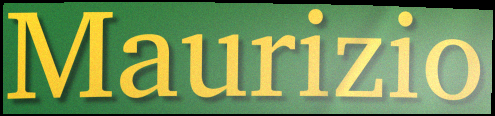
Maurizio